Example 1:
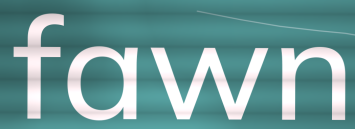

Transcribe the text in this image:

fawn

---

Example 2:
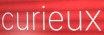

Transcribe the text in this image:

curieux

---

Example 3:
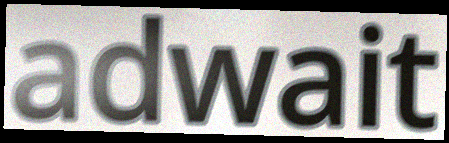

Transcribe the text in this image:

adwait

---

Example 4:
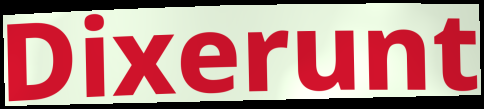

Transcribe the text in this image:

Dixerunt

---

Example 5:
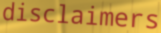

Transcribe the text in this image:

disclaimers